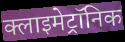
क्लाइमेट्रॉनिक